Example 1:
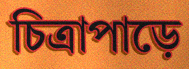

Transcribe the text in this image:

চিত্রাপাড়ে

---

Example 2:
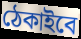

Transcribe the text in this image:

ঠেকাইবে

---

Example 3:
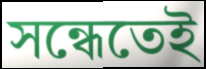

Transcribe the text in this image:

সন্ধেতেই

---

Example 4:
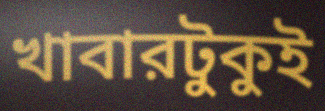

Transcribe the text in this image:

খাবারটুকুই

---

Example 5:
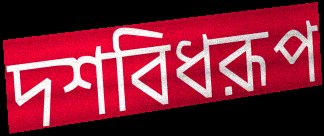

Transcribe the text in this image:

দশবিধরূপ